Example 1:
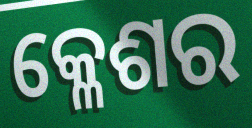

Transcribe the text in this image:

କ୍ଳେଶର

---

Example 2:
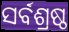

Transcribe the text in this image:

ସର୍ବଶ୍ରଷ୍ଠ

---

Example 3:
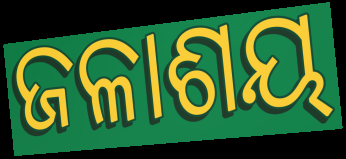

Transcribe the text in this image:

ଜଳାଶୟ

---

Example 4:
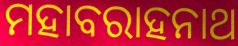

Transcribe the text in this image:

ମହାବରାହନାଥ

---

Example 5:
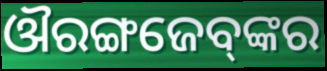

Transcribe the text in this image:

ଔରଙ୍ଗଜେବ୍‌ଙ୍କର